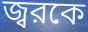
জ্বরকে